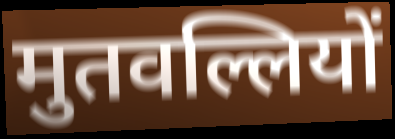
मुतवल्लियों